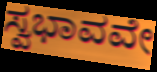
ಸ್ವಭಾವವೇ